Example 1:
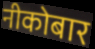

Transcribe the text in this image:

नीकोबार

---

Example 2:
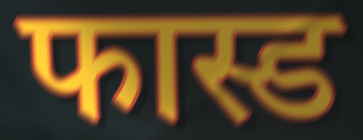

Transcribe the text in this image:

फास्ड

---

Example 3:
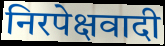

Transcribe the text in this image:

निरपेक्षवादी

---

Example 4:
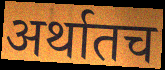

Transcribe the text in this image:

अर्थातच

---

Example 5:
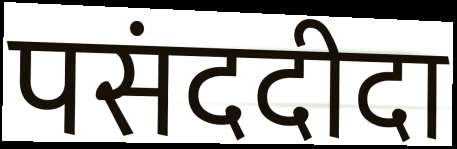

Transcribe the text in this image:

पसंददीदा